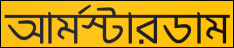
আর্মস্টারডাম